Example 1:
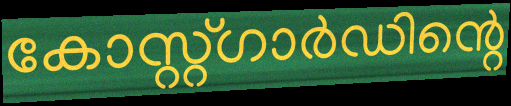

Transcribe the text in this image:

കോസ്റ്റ്ഗാർഡിന്റെ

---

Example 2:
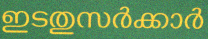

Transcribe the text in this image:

ഇടതുസർക്കാർ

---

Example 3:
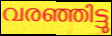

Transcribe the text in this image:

വരഞ്ഞിട്ടു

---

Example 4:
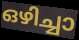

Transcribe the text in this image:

ഒഴിച്ചാ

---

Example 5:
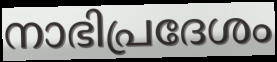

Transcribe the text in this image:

നാഭിപ്രദേശം